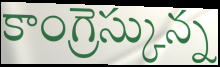
కాంగ్రెస్కున్న